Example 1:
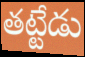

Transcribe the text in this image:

తట్టేడు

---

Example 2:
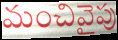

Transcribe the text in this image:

మంచివైపు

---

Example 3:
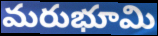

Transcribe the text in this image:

మరుభూమి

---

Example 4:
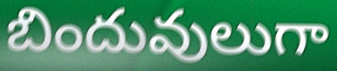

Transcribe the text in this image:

బిందువులుగా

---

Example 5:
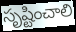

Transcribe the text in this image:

సృష్టించాలి